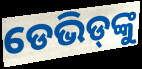
ଡେଭିଡ୍‌ଙ୍କୁ